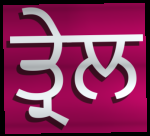
ਤ੍ਰੇਲ